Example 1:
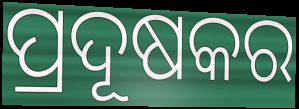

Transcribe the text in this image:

ପ୍ରଦୂଷକର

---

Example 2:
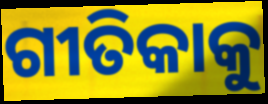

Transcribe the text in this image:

ଗୀତିକାକୁ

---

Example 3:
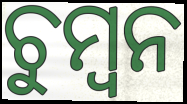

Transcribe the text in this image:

ଚୁମ୍ବନ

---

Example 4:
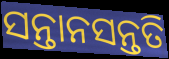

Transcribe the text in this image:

ସନ୍ତାନସନ୍ତତି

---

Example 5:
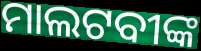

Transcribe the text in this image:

ମାଲଟବୀଙ୍କ